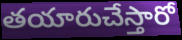
తయారుచేస్తారో